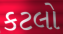
કટલો